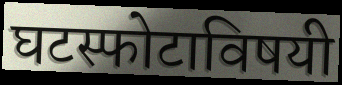
घटस्फोटाविषयी